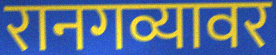
रानगव्यावर